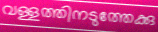
വള്ളത്തിനടുത്തേക്കു